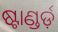
ଷ୍ଟାଣ୍ଡର୍ଡ଼